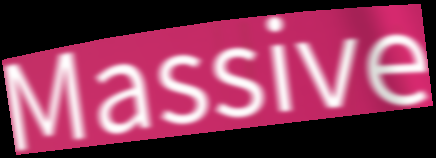
Massive